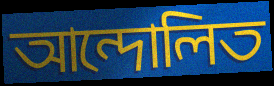
আন্দোলিত